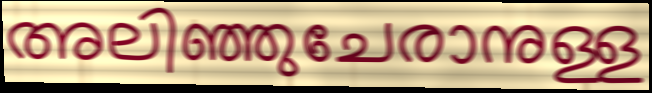
അലിഞ്ഞുചേരാനുള്ള